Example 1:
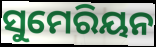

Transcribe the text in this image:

ସୁମେରିୟନ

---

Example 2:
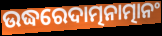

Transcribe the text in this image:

ଉଦ୍ଧରେଦାତ୍ମନାତ୍ମାନଂ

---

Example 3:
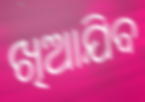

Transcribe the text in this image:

ଖିଆଯିବ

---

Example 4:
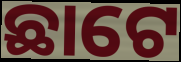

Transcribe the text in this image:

ଛାଟେ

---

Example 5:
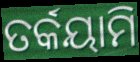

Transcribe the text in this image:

ତର୍କୟାମି